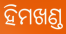
ହିମଖଣ୍ଡ